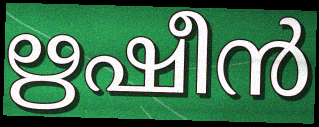
ഋഷീൻ